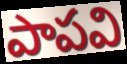
పాపవి